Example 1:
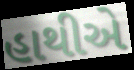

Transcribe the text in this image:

હાથીએ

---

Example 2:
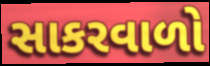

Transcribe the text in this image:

સાકરવાળો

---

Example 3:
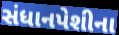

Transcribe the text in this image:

સંધાનપેશીના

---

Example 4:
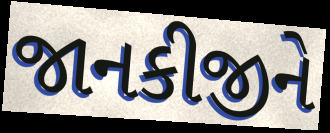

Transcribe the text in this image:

જાનકીજીને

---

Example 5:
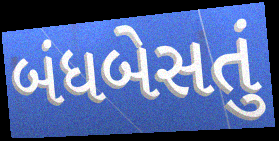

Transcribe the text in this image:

બંધબેસતું